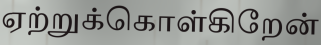
ஏற்றுக்கொள்கிறேன்